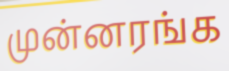
முன்னரங்க